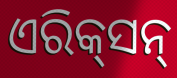
ଏରିକ୍‌ସନ୍